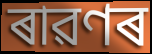
ৰাৱণৰ